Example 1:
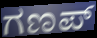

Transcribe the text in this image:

ಗಣಪ್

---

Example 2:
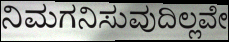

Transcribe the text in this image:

ನಿಮಗನಿಸುವುದಿಲ್ಲವೇ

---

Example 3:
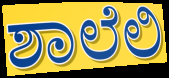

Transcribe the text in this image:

ಶಾಲೆಲಿ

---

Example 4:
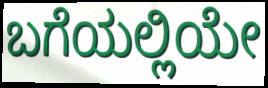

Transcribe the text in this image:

ಬಗೆಯಲ್ಲಿಯೇ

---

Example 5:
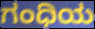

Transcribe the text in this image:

ಗಂಧಿಯ